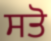
ਸਤੋ